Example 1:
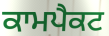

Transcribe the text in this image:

ਕਾਮਪੈਕਟ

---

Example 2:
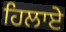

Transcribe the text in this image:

ਹਿਲਾਏ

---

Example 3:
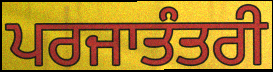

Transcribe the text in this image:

ਪਰਜਾਤੰਤਰੀ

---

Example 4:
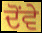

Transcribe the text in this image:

ਦੋਂਵੇ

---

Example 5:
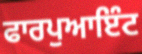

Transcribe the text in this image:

ਫਾਰਪੁਆਇੰਟ